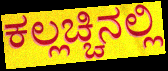
ಕಲ್ಲಚ್ಚಿನಲ್ಲಿ